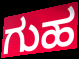
ಗುಹ